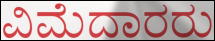
ವಿಮೆದಾರರು